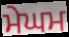
ਮੇਘਮ